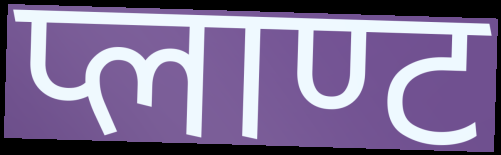
प्लाण्ट